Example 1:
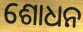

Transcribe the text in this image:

ଶୋଧନ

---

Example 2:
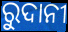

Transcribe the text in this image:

ରୁଦାନୀ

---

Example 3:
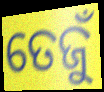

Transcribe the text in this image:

ତେଜୁଁ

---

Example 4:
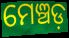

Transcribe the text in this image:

ମେଞ୍ଚଡ଼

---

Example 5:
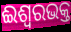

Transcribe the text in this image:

ଈଶ୍ୱରଭକ୍ତ